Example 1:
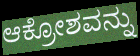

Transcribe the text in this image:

ಆಕ್ರೋಶವನ್ನು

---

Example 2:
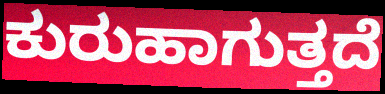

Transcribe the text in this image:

ಕುರುಹಾಗುತ್ತದೆ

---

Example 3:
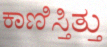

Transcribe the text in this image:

ಕಾಣಿಸ್ತಿತ್ತು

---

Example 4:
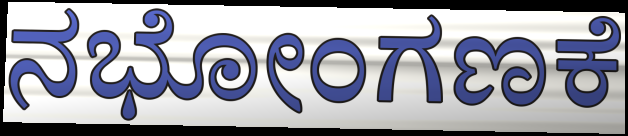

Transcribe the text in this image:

ನಭೋಂಗಣಕೆ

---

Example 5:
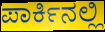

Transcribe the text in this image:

ಪಾರ್ಕಿನಲ್ಲಿ